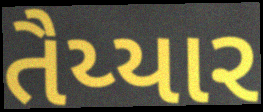
તૈય્યાર